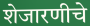
शेजारणीचे